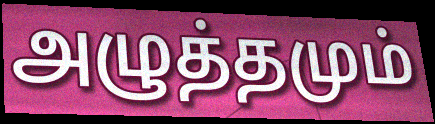
அழுத்தமும்